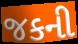
જકની